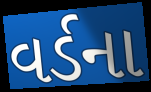
વર્ડના